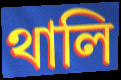
থালি